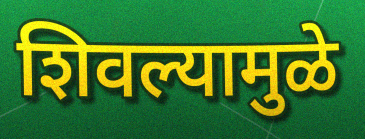
शिवल्यामुळे